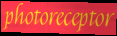
photoreceptor